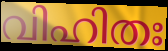
വിഹിതഃ